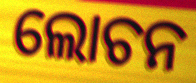
ଲୋଚନ